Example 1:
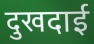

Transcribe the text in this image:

दुखदाई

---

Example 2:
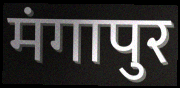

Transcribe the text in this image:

मंगापुर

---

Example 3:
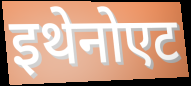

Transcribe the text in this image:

इथेनोएट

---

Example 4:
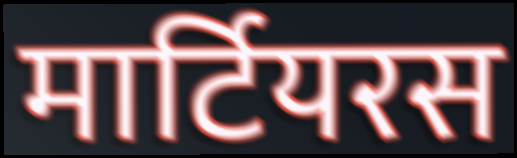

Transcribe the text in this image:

मार्टियरस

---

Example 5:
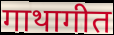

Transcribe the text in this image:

गाथागीत